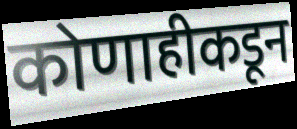
कोणाहीकडून